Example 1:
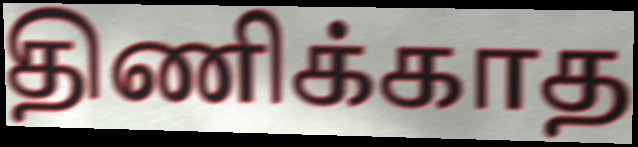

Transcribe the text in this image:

திணிக்காத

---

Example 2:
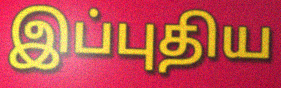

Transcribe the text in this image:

இப்புதிய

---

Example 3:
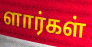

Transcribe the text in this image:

ளார்கள்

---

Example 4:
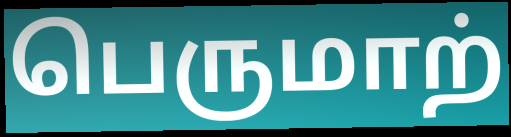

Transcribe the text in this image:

பெருமாற்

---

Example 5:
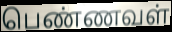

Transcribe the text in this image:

பெண்ணவள்